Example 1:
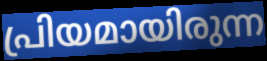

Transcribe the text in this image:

പ്രിയമായിരുന്ന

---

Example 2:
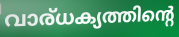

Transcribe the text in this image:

വാര്ധക്യത്തിന്റെ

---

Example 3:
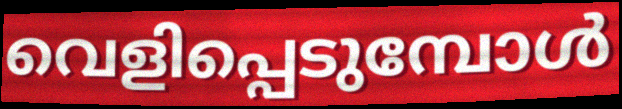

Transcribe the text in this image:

വെളിപ്പെടുമ്പോൾ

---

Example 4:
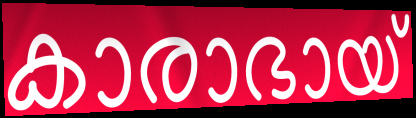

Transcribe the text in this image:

കാരാഭായ്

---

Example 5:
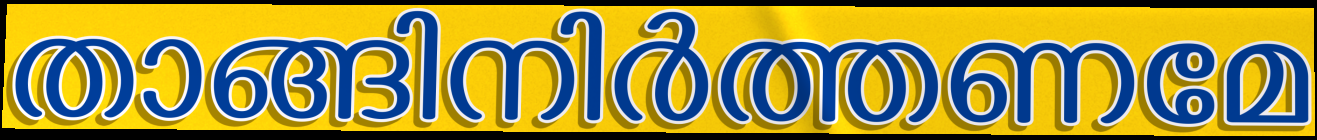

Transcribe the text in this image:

താങ്ങിനിർത്തണമേ